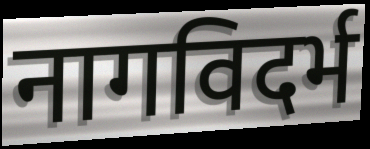
नागविदर्भ